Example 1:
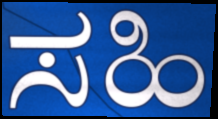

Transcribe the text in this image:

ಸಹಿ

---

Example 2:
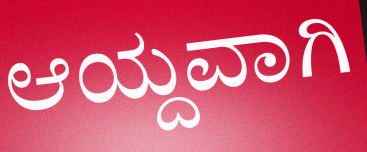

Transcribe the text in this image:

ಆಯ್ದವಾಗಿ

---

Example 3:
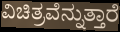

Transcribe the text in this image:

ವಿಚಿತ್ರವೆನ್ನುತ್ತಾರೆ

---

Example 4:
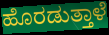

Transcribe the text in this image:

ಹೊರಡುತ್ತಾಳೆ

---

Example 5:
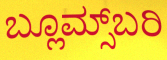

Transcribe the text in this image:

ಬ್ಲೂಮ್ಸ್‌ಬರಿ